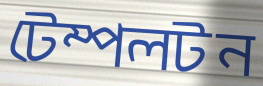
টেম্পলটন